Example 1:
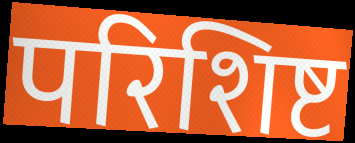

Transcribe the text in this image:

परिशिष्ट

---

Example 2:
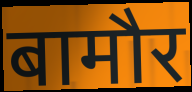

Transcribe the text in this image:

बामौर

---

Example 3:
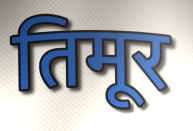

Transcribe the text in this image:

तिमूर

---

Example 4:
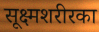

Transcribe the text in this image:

सूक्ष्मशरीरका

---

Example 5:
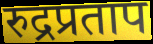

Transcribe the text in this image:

रुद्रप्रताप